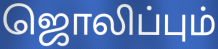
ஜொலிப்பும்